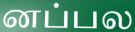
னப்பல